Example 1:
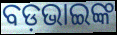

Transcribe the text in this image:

ବଡ଼ଭାଇଙ୍କ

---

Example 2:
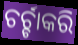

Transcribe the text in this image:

ଚର୍ଚ୍ଚାକରି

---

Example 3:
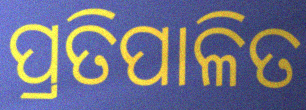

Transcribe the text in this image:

ପ୍ରତିପାଳିତ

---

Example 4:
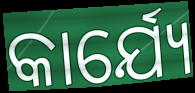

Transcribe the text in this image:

କାର୍ଯ୍ୟେ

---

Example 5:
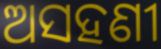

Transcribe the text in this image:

ଅସହଣୀ